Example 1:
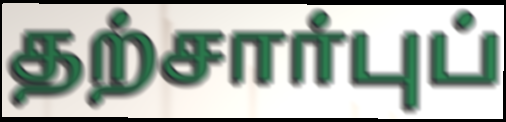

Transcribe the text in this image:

தற்சார்புப்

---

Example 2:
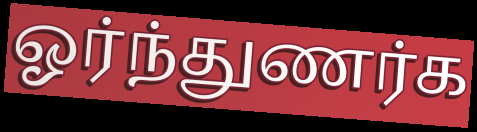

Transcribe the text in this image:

ஓர்ந்துணர்க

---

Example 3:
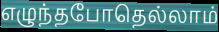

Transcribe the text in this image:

எழுந்தபோதெல்லாம்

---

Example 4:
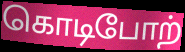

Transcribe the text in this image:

கொடிபோற்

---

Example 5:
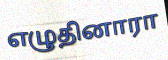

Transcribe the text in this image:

எழுதினாரா